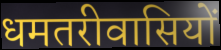
धमतरीवासियों